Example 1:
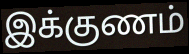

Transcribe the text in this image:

இக்குணம்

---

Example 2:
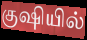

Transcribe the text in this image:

குஷியில்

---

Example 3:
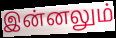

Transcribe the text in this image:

இன்னலும்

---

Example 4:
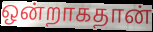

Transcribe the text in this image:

ஒன்றாகதான்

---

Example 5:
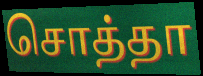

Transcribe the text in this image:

சொத்தா